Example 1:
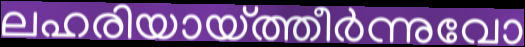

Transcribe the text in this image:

ലഹരിയായ്ത്തീർന്നുവോ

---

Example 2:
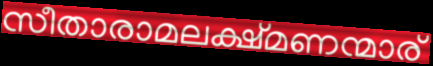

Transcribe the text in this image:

സീതാരാമലക്ഷ്മണന്മാര്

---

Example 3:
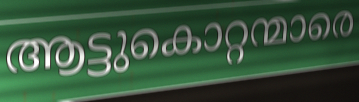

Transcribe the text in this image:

ആട്ടുകൊറ്റന്മാരെ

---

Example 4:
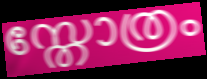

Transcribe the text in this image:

സ്തോത്രം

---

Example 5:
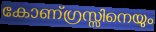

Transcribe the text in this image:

കോണ്ഗ്രസ്സിനെയും